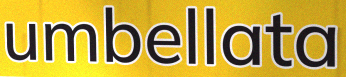
umbellata